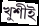
খুশীই